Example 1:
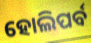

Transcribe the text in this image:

ହୋଲିପର୍ବ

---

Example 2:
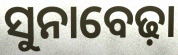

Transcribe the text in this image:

ସୁନାବେଢ଼ା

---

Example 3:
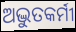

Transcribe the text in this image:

ଅଦ୍ଭୁତକର୍ମୀ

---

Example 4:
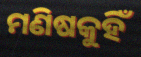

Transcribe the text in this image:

ମଣିଷକୁହିଁ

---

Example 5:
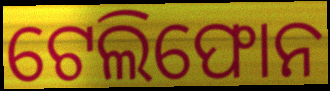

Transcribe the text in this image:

ଟେଲିଫୋନ